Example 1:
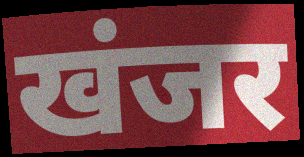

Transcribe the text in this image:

खंजर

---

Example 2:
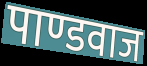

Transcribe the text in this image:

पाण्डवाज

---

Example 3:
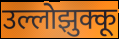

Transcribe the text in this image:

उल्लोझुक्कू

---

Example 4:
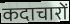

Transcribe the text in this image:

कदाचारों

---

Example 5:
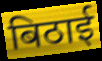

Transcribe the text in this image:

बिठाई